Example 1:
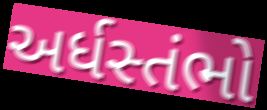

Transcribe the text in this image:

અર્ધસ્તંભો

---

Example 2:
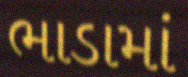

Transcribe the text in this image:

ભાડામાં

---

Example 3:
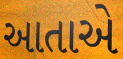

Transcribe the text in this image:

આતાએ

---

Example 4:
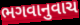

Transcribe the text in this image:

ભગવાનુવાચ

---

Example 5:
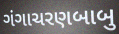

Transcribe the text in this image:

ગંગાચરણબાબુ